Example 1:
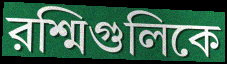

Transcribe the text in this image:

রশ্মিগুলিকে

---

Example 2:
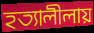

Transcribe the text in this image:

হত্যালীলায়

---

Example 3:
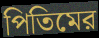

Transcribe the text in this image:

পিতিমের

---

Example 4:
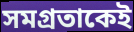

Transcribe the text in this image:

সমগ্রতাকেই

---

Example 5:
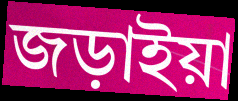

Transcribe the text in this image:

জড়াইয়া